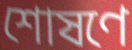
শোষণে